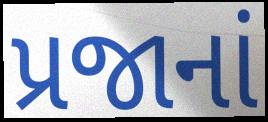
પ્રજાનાં